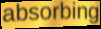
absorbing